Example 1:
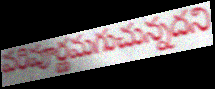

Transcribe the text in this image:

పరిపూర్ణమగుచున్నదని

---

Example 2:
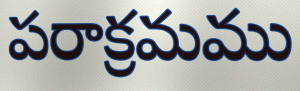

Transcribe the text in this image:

పరాక్రమము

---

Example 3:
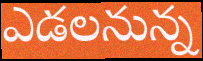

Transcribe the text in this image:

ఎడలనున్న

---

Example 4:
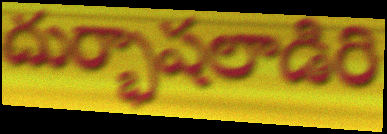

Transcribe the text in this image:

దుర్భాషలాడిరి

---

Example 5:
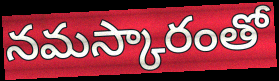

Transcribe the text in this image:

నమస్కారంతో